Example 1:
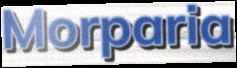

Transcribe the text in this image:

Morparia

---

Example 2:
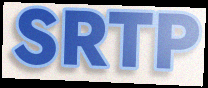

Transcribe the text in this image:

SRTP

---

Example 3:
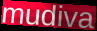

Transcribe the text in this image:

mudiva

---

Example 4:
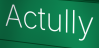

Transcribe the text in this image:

Actully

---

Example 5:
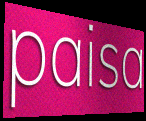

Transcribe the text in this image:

paisa